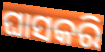
ଘାସକରି